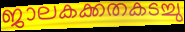
ജാലകക്കതകടച്ചു